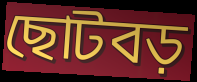
ছোটবড়